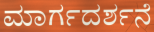
ಮಾರ್ಗದರ್ಶನೆ